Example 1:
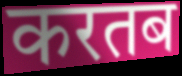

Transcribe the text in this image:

करतब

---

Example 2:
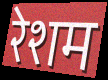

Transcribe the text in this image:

रेशम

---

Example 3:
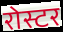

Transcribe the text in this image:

रोस्टर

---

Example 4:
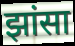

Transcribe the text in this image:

झांसा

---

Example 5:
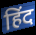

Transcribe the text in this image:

हिंद